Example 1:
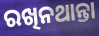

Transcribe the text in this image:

ରଖିନଥାନ୍ତା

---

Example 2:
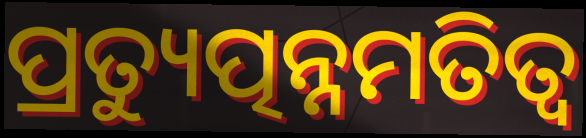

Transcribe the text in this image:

ପ୍ରତ୍ୟୁତ୍ପନ୍ନମତିତ୍ୱ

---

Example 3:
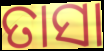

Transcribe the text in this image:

ତାସା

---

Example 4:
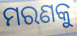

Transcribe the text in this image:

ମରଣକୁ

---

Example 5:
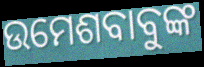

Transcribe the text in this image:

ଉମେଶବାବୁଙ୍କ